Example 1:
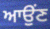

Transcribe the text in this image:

ਆਉਂਣ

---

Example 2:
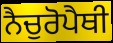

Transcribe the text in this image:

ਨੈਚੁਰੋਪੈਥੀ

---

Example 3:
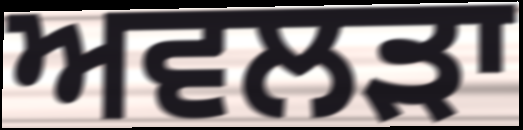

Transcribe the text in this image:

ਅਵਲੜਾ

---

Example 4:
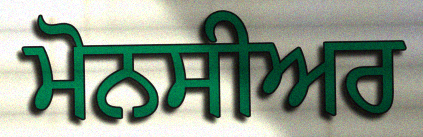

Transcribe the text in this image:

ਮੋਨਸੀਅਰ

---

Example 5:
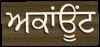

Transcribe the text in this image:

ਅਕਾਂਊਂਟ